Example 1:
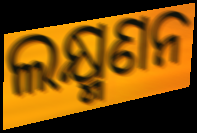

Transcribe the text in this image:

ଲକ୍ଷ୍ମଣନ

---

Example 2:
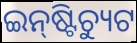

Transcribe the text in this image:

ଇନ୍‍ଷ୍ଟିଚ୍ୟୁଟ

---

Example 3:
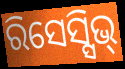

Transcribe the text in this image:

ରିସେସ୍ସିଭ୍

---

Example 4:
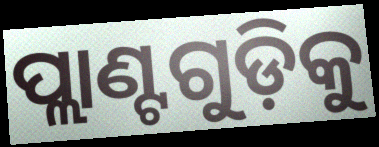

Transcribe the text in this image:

ପ୍ଲାଣ୍ଟଗୁଡ଼ିକୁ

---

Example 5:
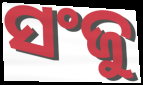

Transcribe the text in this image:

ସଂଜୁ